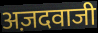
अज़दवाजी